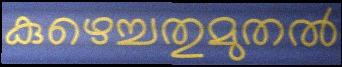
കുഴെച്ചതുമുതൽ